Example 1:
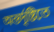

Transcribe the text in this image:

অন্তর্দৃষ্টিতে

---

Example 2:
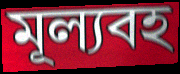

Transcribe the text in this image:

মূল্যবহ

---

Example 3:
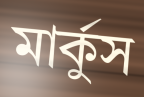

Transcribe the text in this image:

মার্কুস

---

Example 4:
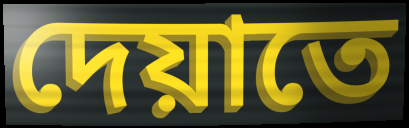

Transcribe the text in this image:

দেয়াতে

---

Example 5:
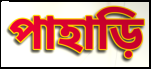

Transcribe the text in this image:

পাহাড়ি